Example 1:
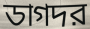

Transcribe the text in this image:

ডাগদর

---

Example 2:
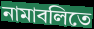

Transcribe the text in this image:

নামাবলিতে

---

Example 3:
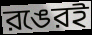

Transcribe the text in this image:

রঙেরই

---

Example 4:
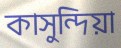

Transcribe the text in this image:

কাসুন্দিয়া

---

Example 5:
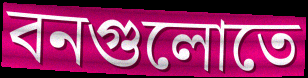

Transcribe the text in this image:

বনগুলোতে